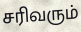
சரிவரும்